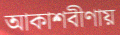
আকাশবীণায়